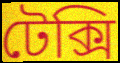
টেক্সি